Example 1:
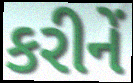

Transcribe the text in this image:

કરીનેં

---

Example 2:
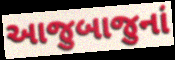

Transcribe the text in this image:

આજુબાજુનાં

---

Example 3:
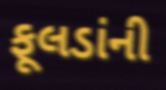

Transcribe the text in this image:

ફૂલડાંની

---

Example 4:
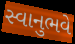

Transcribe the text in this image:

સ્વાનુભવે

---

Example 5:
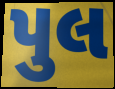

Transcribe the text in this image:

પુલ